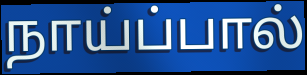
நாய்ப்பால்